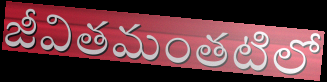
జీవితమంతటిలో